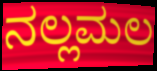
ನಲ್ಲಮಲ